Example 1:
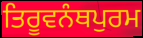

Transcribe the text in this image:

ਤਿਰੂਵਨੰਥਪੁਰਮ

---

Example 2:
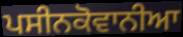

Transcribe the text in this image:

ਪਸੀਨਕੋਵਾਨੀਆ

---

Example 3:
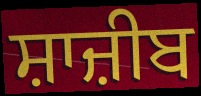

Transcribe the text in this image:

ਸ਼ਾਜ਼ੀਬ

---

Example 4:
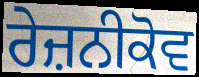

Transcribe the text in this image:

ਰੇਜ਼ਨੀਕੋਵ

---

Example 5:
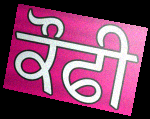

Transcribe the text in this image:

ਕੌਫੀ